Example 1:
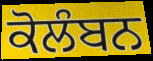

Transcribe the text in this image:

ਕੋਲੰਬਨ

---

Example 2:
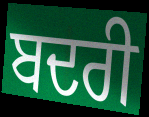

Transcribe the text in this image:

ਬਦਰੀ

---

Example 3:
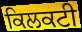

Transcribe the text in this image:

ਕਿਲਕਟੀ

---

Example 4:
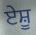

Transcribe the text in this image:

ਏਸ਼ੂ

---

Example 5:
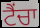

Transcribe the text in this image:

ਟੈਂਚਾ